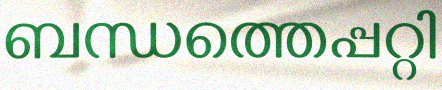
ബന്ധത്തെപ്പറ്റി